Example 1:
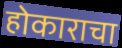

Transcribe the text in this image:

होकाराचा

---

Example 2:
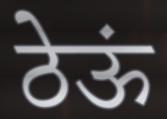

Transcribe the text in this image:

ठेऊं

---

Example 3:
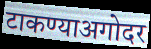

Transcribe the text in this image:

टाकण्याअगोदर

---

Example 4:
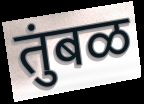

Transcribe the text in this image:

तुंबळ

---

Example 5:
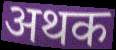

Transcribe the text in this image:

अथक